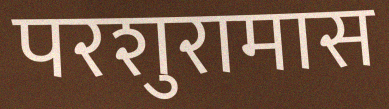
परशुरामास